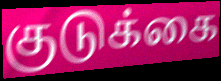
குடுக்கை